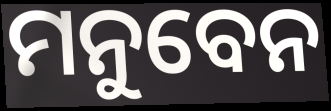
ମନୁବେନ